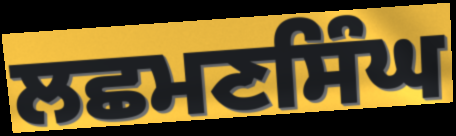
ਲਛਮਣਸਿੰਘ